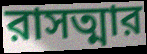
রাসত্মার